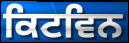
ਕਿਟਵਿਨ